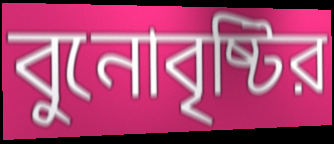
বুনোবৃষ্টির